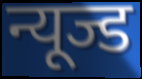
न्यूज्ड